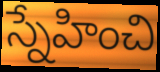
స్నేహించి